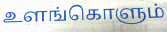
உளங்கொளும்